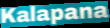
Kalapana